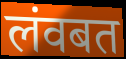
लंवबत